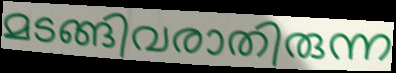
മടങ്ങിവരാതിരുന്ന